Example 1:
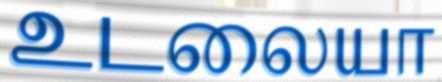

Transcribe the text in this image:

உடலையா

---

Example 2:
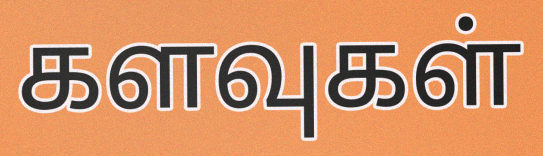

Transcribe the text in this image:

களவுகள்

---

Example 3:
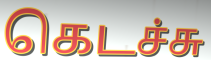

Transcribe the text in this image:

கெடச்சு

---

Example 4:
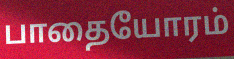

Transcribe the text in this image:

பாதையோரம்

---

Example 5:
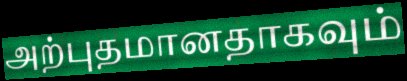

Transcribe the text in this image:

அற்புதமானதாகவும்